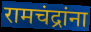
रामचंद्रांना